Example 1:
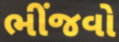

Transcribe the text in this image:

ભીંજવો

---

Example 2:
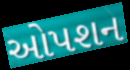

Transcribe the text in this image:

ઓપશન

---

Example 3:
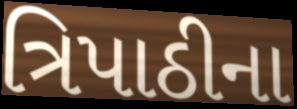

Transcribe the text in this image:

ત્રિપાઠીના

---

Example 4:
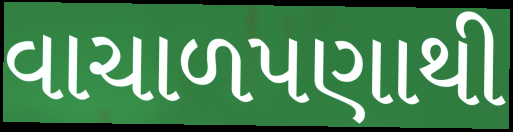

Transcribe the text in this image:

વાચાળપણાથી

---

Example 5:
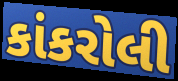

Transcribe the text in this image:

કાંકરોલી